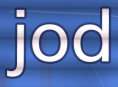
jod